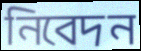
নিবেদন